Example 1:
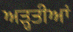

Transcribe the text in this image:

ਅੜ੍ਹਤੀਆਂ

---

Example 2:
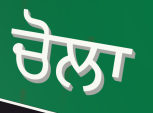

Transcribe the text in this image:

ਚੋਲਾ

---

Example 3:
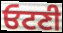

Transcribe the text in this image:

ਓਟਣੀ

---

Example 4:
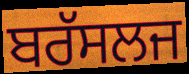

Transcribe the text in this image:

ਬਰੱਸਲਜ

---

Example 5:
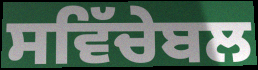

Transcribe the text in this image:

ਸਵਿੱਚੇਬਲ